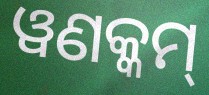
ୱଣକ୍କମ୍